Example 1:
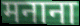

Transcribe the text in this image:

मनाना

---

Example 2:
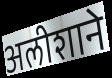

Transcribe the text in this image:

अलीशाने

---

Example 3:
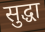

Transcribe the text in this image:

सुद्धा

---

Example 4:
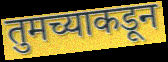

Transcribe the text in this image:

तुमच्याकडून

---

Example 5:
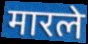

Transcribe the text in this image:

मारले